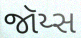
જૉય્સ